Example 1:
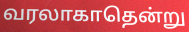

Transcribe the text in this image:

வரலாகாதென்று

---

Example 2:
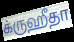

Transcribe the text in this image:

க்ருஹீதா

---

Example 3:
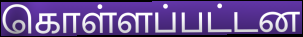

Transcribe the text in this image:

கொள்ளப்பட்டன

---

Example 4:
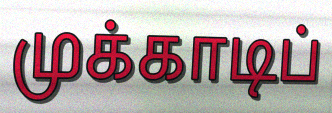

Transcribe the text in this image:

முக்காடிப்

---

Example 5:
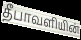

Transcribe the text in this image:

தீபாவளியின்